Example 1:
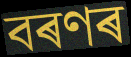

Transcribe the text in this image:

বৰণৰ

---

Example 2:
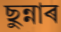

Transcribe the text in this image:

ছুন্নাৰ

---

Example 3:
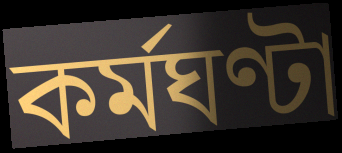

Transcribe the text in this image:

কৰ্মঘণ্টা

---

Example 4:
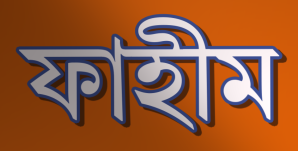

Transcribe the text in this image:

ফাহীম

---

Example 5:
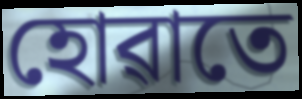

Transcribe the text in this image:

হোৱাতে